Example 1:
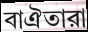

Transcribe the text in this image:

বাঐতারা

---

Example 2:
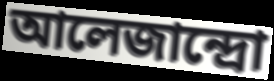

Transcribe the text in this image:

আলেজান্দ্রো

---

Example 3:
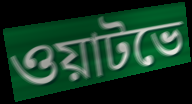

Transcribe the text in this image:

ওয়াটভে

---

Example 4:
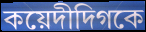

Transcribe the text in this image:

কয়েদীদিগকে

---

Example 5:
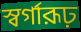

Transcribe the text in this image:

স্বর্গারূঢ়